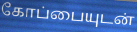
கோப்பையுடன்